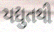
યદ્યુતથી